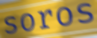
soros